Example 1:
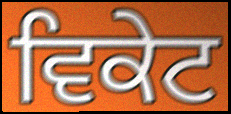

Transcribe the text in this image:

ਵਿਕੇਟ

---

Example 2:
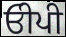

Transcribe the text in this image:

ਓੀਪੀ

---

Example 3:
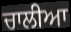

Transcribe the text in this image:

ਚਾਲੀਆ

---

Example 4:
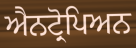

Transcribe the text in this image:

ਐਨਟ੍ਰੋਪਿਅਨ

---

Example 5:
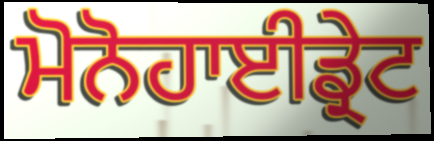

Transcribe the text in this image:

ਮੋਨੋਹਾਈਡ੍ਰੇਟ